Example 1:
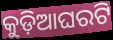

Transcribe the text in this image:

କୁଡ଼ିଆଘରଟି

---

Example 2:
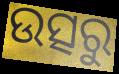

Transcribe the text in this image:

ଉତ୍ସରୁ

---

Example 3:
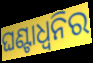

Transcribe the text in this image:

ଘଣ୍ଟାଧ୍ୱନିର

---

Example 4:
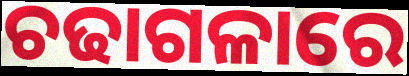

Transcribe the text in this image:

ଚଢାଗଳାରେ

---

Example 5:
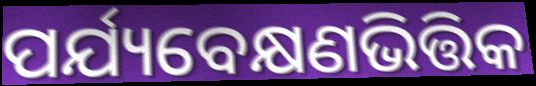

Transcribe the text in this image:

ପର୍ଯ୍ୟବେକ୍ଷଣଭିତ୍ତିକ